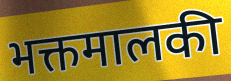
भक्तमालकी